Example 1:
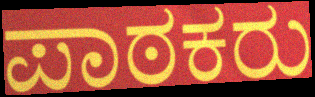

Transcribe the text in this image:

ಪಾಠಕರು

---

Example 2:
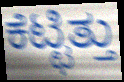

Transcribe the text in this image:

ಕೆಟ್ಟಿತ್ತು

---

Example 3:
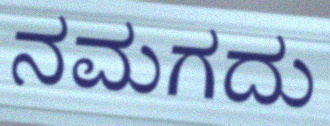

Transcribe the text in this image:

ನಮಗದು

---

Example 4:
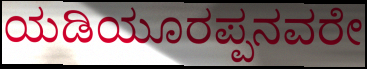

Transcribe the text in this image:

ಯಡಿಯೂರಪ್ಪನವರೇ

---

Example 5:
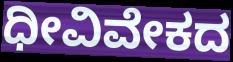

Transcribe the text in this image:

ಧೀವಿವೇಕದ